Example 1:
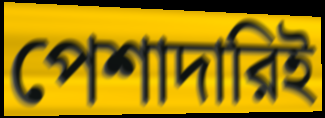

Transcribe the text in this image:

পেশাদারিই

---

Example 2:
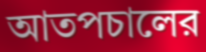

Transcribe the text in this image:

আতপচালের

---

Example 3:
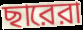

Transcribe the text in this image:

ছারেরা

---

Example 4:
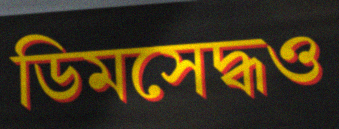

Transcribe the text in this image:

ডিমসেদ্ধও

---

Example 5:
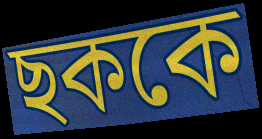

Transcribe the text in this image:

ছককে